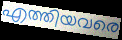
എത്തിയവരെ